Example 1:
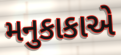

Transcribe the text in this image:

મનુકાકાએ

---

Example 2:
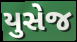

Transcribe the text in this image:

યુસેજ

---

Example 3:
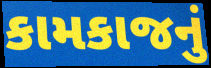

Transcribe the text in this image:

કામકાજનું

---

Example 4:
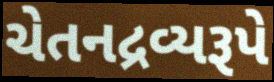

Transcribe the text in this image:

ચેતનદ્રવ્યરૂપે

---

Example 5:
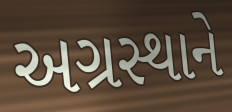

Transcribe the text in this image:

અગ્રસ્થાને